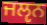
ਜਲੵਨ